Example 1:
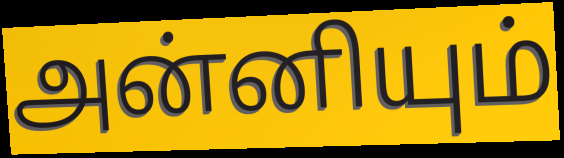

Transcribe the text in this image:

அன்னியும்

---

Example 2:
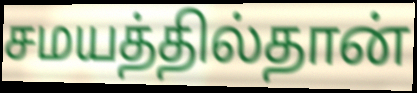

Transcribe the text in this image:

சமயத்தில்தான்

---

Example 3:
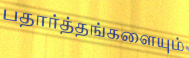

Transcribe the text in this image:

பதார்த்தங்களையும்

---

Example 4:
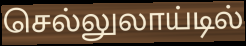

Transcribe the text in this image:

செல்லுலாய்டில்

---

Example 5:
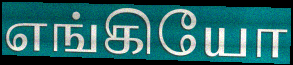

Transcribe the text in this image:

எங்கியோ